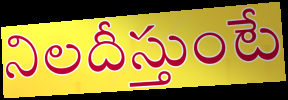
నిలదీస్తుంటే